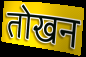
तोखन